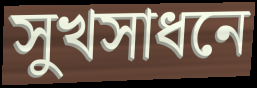
সুখসাধনে